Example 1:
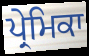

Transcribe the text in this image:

ਪ੍ਰੇਮਿਕਾ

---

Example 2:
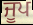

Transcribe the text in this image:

ਜੂਪ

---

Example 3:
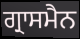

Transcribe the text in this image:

ਗ੍ਰਾਸਮੈਨ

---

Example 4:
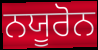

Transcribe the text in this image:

ਨਯੂਰੋਨ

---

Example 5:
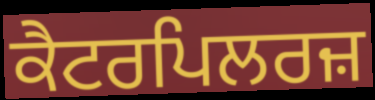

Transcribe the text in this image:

ਕੈਟਰਪਿਲਰਜ਼